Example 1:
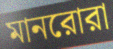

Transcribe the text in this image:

মানরোরা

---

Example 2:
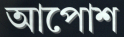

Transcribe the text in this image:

আপোশ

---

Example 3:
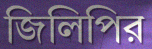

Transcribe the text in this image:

জিলিপির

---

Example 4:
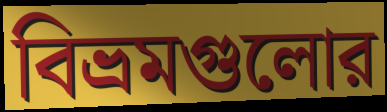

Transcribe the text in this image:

বিভ্রমগুলোর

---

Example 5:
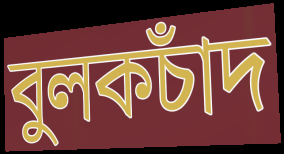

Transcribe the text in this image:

বুলকচাঁদ